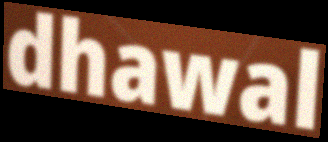
dhawal